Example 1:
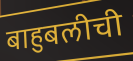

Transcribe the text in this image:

बाहुबलीची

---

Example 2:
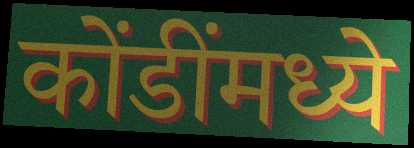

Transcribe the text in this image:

कोंडींमध्ये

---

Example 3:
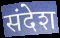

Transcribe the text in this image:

संदेश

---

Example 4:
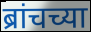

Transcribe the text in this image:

ब्रांचच्या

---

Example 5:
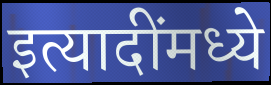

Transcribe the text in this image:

इत्यादींमध्ये